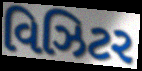
વિઝિટર